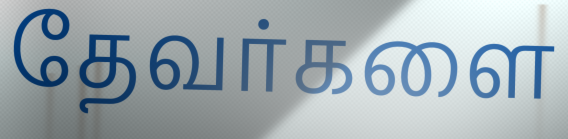
தேவர்களை